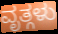
ವೃತ್ಗಳು